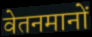
वेतनमानों